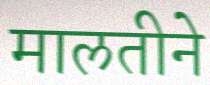
मालतीने